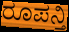
ರೂಪನ್ತಿ